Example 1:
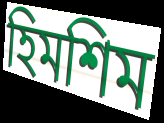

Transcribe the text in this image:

হিমশিম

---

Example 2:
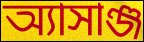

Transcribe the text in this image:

অ্যাসাঞ্জ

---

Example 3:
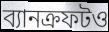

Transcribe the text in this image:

ব্যানক্রফটও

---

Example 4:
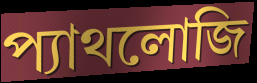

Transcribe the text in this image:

প্যাথলোজি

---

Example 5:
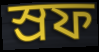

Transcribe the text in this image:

স্রফ